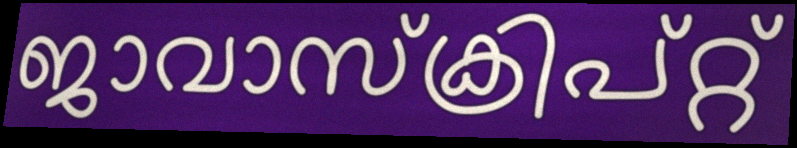
ജാവാസ്ക്രിപ്റ്റ്